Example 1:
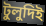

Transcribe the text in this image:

টুলুদিই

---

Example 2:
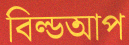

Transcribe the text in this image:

বিল্ডআপ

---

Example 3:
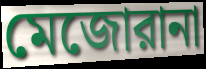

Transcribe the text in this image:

মেজোরানা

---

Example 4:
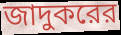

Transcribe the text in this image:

জাদুকরের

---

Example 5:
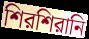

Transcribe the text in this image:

শিরশিরানি